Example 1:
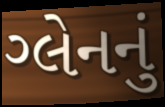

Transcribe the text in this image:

ગ્લેનનું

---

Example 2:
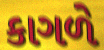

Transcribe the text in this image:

કાગળે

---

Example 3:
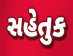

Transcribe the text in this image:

સહેતુક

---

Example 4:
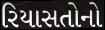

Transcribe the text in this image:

રિયાસતોનો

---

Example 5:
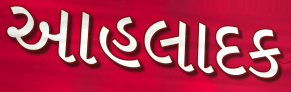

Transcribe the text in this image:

આહલાદક